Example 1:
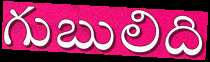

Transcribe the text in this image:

గుబులిది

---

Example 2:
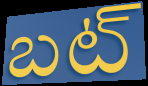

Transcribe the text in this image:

బట్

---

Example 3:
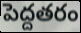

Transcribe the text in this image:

పెద్దతరం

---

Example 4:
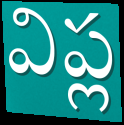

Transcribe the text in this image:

విప్ల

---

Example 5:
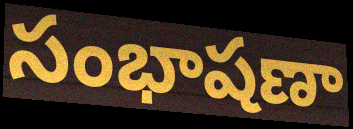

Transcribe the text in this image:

సంభాషణా